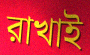
রাখাই